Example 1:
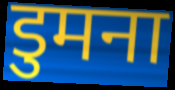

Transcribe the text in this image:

डुमना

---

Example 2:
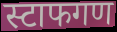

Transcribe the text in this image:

स्टाफगण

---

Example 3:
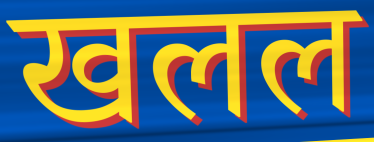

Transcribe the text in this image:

खलल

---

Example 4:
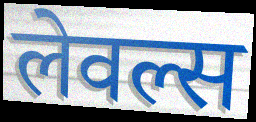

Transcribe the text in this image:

लेवल्स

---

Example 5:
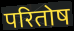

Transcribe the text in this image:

परितोष